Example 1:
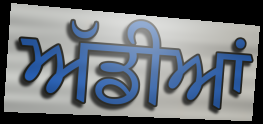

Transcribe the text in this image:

ਅੱਡੀਆਂ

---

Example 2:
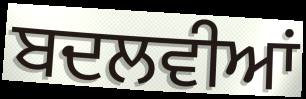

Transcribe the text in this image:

ਬਦਲਵੀਆਂ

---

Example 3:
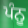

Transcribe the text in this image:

ਪੰਨੂ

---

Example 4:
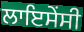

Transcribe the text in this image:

ਲਾਇਸੇਂਸੀ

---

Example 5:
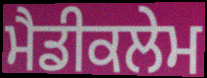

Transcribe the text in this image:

ਮੈਡੀਕਲੇਮ